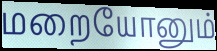
மறையோனும்